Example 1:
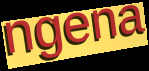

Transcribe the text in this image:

ngena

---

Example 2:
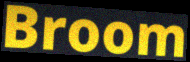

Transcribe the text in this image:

Broom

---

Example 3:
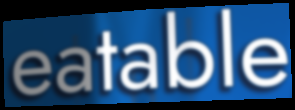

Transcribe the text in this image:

eatable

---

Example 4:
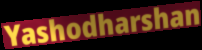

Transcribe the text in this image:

Yashodharshan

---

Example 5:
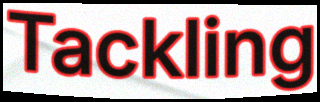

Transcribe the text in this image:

Tackling